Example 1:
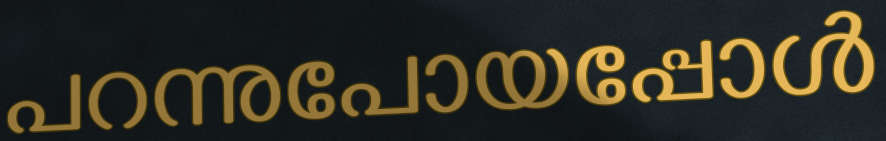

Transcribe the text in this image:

പറന്നുപോയപ്പോൾ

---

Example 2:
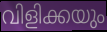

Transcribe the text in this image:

വിളിക്കയും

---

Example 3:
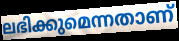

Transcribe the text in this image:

ലഭിക്കുമെന്നതാണ്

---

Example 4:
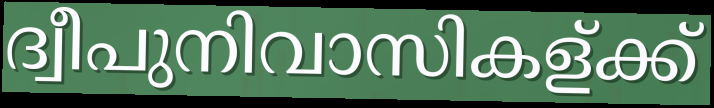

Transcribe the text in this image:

ദ്വീപുനിവാസികള്ക്ക്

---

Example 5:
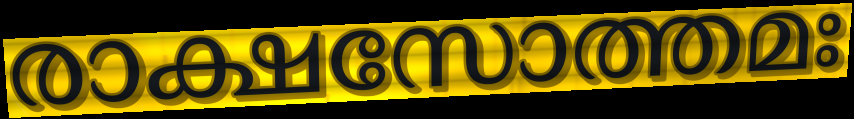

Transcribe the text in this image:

രാക്ഷസോത്തമഃ